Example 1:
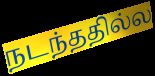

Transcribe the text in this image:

நடந்ததில்ல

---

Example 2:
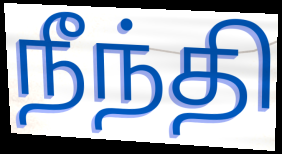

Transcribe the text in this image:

நீந்தி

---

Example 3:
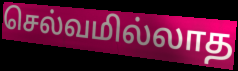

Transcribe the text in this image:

செல்வமில்லாத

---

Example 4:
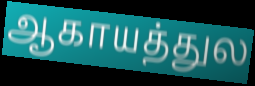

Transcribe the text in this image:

ஆகாயத்துல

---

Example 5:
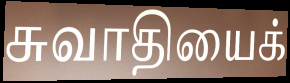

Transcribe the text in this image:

சுவாதியைக்